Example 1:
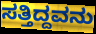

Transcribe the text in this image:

ಸತ್ತಿದ್ದವನು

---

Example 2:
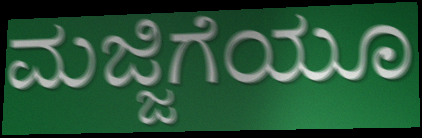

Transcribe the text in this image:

ಮಜ್ಜಿಗೆಯೂ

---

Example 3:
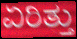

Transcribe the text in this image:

ಏರಿತ್ತು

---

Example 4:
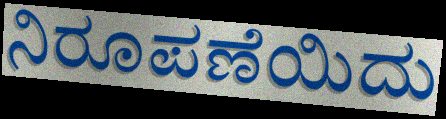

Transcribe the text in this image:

ನಿರೂಪಣೆಯಿದು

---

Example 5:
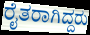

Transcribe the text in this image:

ರೈತರಾಗಿದ್ದರು